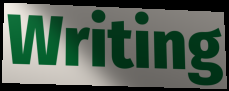
Writing